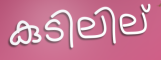
കുടിലില്